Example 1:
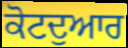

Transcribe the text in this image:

ਕੋਟਦੁਆਰ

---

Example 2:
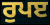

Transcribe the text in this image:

ਰੁਪੲ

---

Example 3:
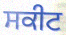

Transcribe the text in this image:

ਸਕੀਟ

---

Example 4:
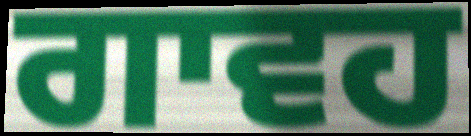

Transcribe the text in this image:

ਗਾਵਹ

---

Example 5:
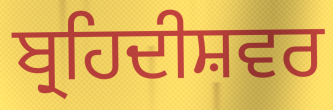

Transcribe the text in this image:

ਬ੍ਰਹਿਦੀਸ਼ਵਰ